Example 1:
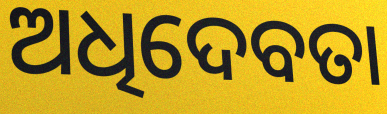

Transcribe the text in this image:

ଅଧିଦେବତା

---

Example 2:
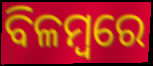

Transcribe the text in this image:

ବିଳମ୍ୱରେ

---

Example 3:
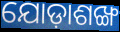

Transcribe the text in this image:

ଯୋଡ଼ାଶଙ୍ଖ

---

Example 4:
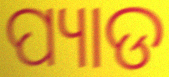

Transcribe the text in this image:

ପ୍ୟାଡ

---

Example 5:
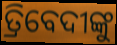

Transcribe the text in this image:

ତ୍ରିବେଦୀଙ୍କୁ